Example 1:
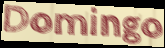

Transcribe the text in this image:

Domingo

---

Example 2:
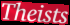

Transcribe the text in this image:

Theists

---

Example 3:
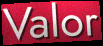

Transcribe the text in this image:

Valor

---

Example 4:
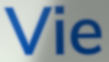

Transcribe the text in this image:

Vie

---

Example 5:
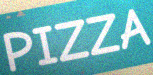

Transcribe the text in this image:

PIZZA